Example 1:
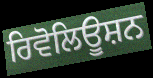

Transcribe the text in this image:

ਰਿਵੋਲਿਊਸ਼ਨ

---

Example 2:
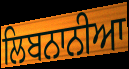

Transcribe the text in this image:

ਲਿਬਨਾਨੀਆ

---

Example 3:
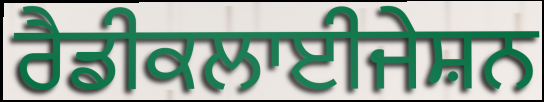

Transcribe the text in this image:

ਰੈਡੀਕਲਾਈਜੇਸ਼ਨ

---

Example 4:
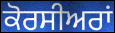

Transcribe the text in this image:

ਕੋਰਸੀਅਰਾਂ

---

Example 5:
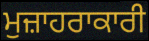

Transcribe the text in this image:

ਮੁਜ਼ਾਹਰਾਕਾਰੀ